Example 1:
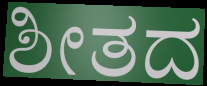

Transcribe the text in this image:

ಶೀತದ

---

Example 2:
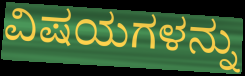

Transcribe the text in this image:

ವಿಷಯಗಳನ್ನು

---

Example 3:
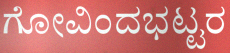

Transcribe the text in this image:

ಗೋವಿಂದಭಟ್ಟರ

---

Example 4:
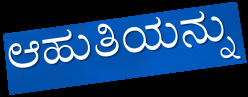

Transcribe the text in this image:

ಆಹುತಿಯನ್ನು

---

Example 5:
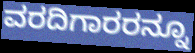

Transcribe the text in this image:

ವರದಿಗಾರರನ್ನೂ